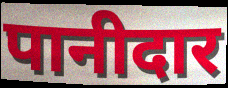
पानीदार